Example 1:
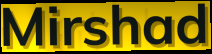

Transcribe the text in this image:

Mirshad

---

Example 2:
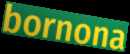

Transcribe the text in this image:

bornona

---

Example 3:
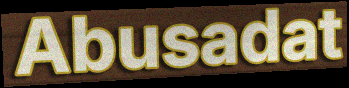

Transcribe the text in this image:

Abusadat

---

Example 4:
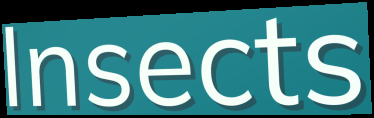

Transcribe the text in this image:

Insects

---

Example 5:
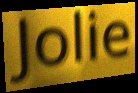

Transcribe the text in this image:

Jolie